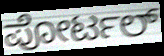
ಪೋರ್ಟಲ್